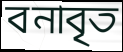
বনাবৃত